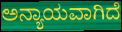
ಅನ್ಯಾಯವಾಗಿದೆ